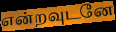
என்றவுடனே